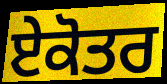
ਏਕੋਤਰ